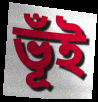
ভূঁই